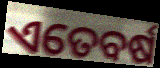
ଏତେବର୍ଷ